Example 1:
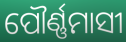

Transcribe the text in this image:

ପୌର୍ଣ୍ଣମାସୀ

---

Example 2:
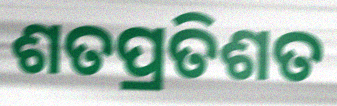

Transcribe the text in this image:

ଶତପ୍ରତିଶତ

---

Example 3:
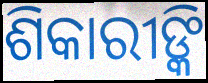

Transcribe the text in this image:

ଶିକାରୀଙ୍କି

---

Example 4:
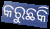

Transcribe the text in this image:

କରୁଛକି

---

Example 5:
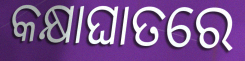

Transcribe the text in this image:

କକ୍ଷାଘାତରେ